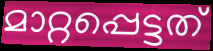
മാറ്റപ്പെട്ടത്